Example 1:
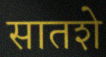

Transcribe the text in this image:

सातशे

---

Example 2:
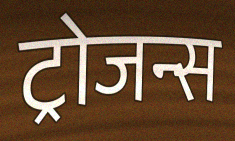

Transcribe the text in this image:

ट्रोजन्स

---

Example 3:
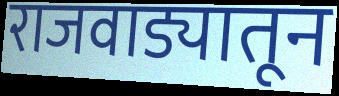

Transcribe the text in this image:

राजवाड्यातून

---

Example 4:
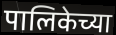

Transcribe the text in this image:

पालिकेच्या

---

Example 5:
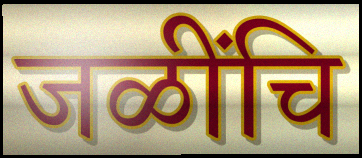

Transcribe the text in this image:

जळींचि